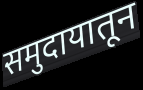
समुदायातून